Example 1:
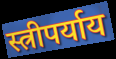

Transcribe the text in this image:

स्त्रीपर्याय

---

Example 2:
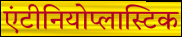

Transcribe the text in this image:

एंटीनियोप्लास्टिक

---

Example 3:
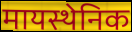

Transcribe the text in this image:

मायस्थेनिक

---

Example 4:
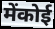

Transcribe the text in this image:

मेंकोई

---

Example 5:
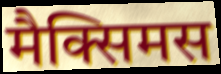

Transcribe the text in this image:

मैक्सिमस